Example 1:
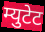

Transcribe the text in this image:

म्युटेट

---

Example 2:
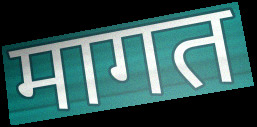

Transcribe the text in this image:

मागत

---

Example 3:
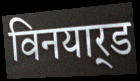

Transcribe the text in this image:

विनयार्ड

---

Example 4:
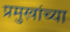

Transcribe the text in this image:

प्रमुखांच्या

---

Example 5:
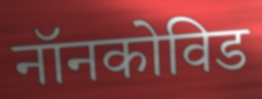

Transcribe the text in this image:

नॉनकोविड